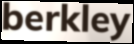
berkley